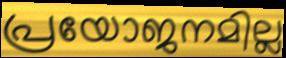
പ്രയോജനമില്ല